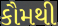
કૌમથી